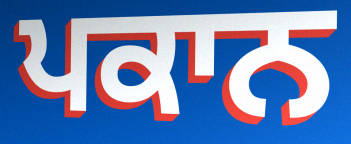
ਪਕਾਨ